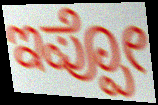
ಇಪ್ಪೋ